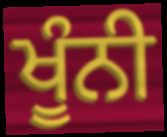
ਖੂੰਨੀ